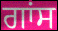
ਗਾਂਸ